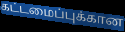
கட்டமைப்புக்கான